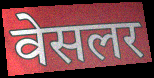
वेसलर